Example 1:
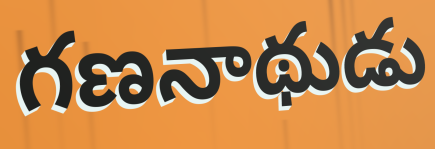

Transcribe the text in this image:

గణనాథుడు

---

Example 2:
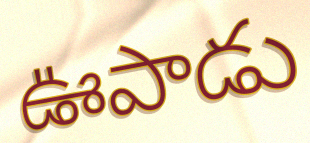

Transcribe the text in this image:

ఊపాడు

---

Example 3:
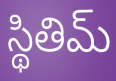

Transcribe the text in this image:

స్థితిమ్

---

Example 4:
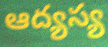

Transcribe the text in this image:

ఆద్యస్య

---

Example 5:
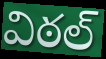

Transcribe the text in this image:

విఠల్